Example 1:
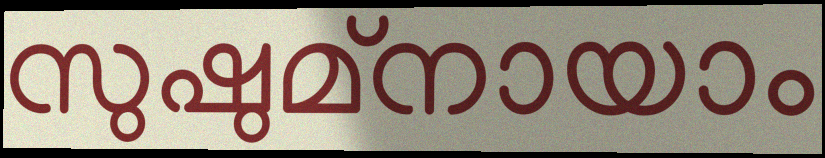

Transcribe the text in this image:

സുഷുമ്നായാം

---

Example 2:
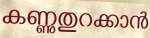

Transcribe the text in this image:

കണ്ണുതുറക്കാൻ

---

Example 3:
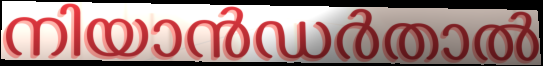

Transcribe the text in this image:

നിയാൻഡർതാൽ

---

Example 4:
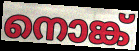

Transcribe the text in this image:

നൊങ്ക്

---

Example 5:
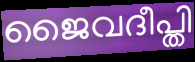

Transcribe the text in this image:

ജൈവദീപ്തി